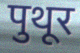
पुथूर